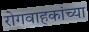
रोगवाहकांच्या